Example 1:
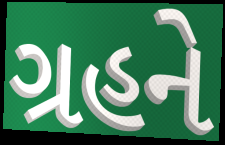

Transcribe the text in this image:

ગ્રહને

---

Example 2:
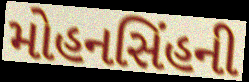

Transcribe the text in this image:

મોહનસિંહની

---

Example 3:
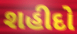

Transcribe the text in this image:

શહીદો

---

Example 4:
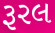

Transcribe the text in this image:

રૂરલ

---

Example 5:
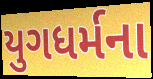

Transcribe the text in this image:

યુગધર્મના